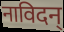
नाविदन्